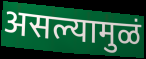
असल्यामुळं